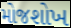
મોજશોખ